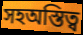
সহঅস্তিত্ব